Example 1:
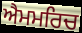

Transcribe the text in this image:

ਐਮਮਰਿਚ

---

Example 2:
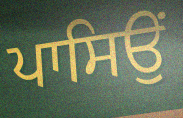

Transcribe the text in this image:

ਪਾਸਿਉਂ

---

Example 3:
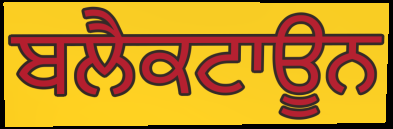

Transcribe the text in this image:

ਬਲੈਕਟਾਊਨ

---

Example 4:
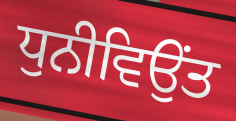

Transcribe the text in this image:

ਧੁਨੀਵਿਉਂਤ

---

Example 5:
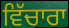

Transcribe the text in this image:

ਵਿੱਚਾਰਾ